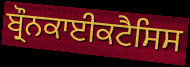
ਬ੍ਰੌਨਕਾਈਕਟੈਸਿਸ